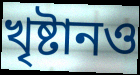
খৃষ্টানও